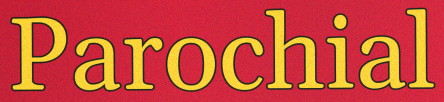
Parochial